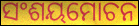
ସଂଶୟମୋଚନ